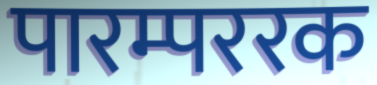
पारम्पररक